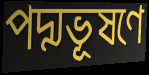
পদ্মভূষণে